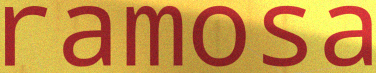
ramosa